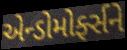
એન્ડોમોર્ફ્સને